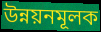
উন্নয়নমূলক